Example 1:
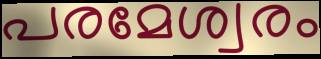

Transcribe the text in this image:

പരമേശ്വരം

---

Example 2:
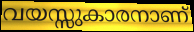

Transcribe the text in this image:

വയസ്സുകാരനാണ്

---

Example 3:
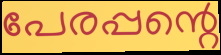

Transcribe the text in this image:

പേരപ്പന്റെ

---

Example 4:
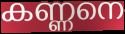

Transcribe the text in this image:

കണ്ണനെ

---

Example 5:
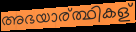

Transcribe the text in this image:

അഭയാര്ത്ഥികള്